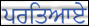
ਪਰਤਿਆਏ